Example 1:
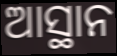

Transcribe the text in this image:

ଆସ୍ଥାନ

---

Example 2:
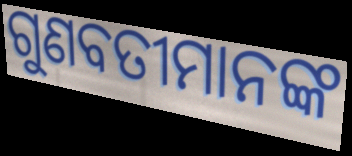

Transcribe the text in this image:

ଗୁଣବତୀମାନଙ୍କ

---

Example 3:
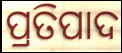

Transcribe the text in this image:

ପ୍ରତିପାଦ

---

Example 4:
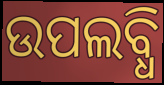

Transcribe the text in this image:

ଉପଲବ୍ଧି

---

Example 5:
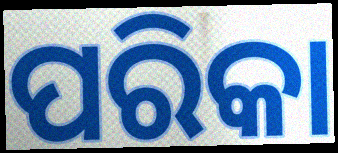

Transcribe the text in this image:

ପରିକା